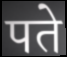
पते